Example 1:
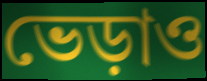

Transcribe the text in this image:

ভেড়াও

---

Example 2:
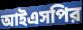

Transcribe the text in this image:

আইএসপির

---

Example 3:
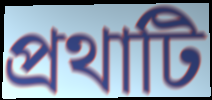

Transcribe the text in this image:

প্রথাটি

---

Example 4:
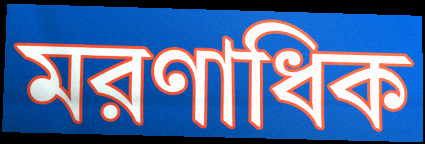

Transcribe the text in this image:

মরণাধিক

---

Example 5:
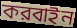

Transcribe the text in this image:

করবাইন